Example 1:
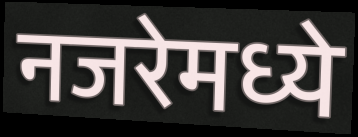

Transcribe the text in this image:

नजरेमध्ये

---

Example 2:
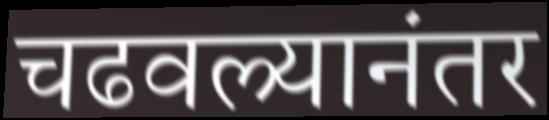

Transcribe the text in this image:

चढवल्यानंतर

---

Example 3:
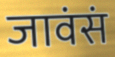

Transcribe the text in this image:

जावंसं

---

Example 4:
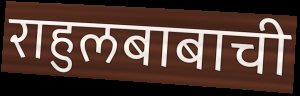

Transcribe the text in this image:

राहुलबाबाची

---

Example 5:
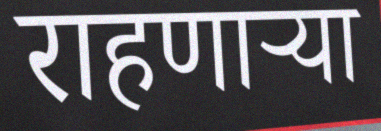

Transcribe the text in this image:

राहणाऱ्या